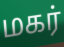
மகர்